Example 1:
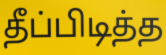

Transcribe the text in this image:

தீப்பிடித்த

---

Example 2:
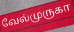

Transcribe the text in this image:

வேல்முருகா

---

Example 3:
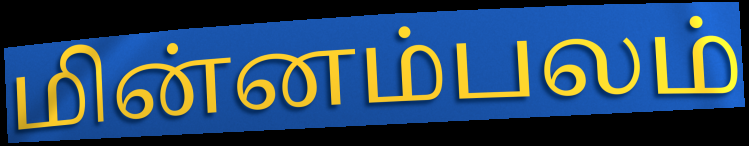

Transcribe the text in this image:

மின்னம்பலம்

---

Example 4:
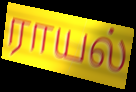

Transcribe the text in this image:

ராயல்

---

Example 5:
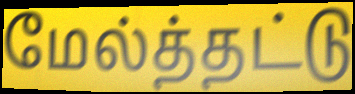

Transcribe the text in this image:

மேல்த்தட்டு